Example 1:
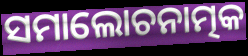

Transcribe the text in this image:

ସମାଲୋଚନାତ୍ମକ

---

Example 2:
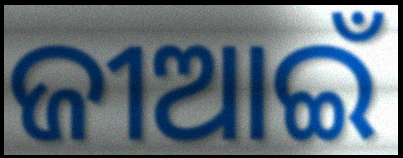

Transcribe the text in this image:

ଜୀଆଇଁ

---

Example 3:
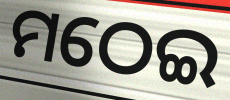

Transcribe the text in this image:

ମଠେଇ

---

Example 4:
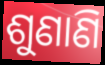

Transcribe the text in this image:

ଶୁଣାଣି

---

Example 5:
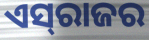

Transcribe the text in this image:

ଏସ୍‍ରାଜର